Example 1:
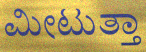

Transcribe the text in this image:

ಮೀಟುತ್ತಾ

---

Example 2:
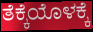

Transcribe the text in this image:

ತೆಕ್ಕೆಯೊಳಕ್ಕೆ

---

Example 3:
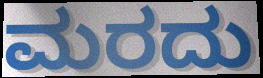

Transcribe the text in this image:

ಮರದು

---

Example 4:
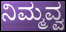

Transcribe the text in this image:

ನಿಮ್ಮವ್ವ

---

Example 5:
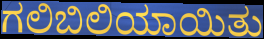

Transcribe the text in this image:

ಗಲಿಬಿಲಿಯಾಯಿತು